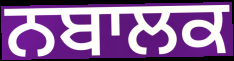
ਨਬਾਲਕ